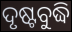
ଦୃଷ୍ଟବୁଦ୍ଧି